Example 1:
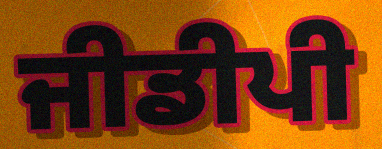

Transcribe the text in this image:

ਜੀਡੀਪੀ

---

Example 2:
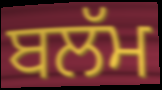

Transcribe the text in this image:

ਬਲੱਮ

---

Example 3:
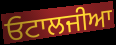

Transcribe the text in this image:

ਓਟਾਲਜੀਆ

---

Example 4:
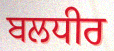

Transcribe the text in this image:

ਬਲਧੀਰ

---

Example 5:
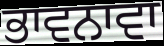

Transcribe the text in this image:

ਭਾਵਨਾਵਾ